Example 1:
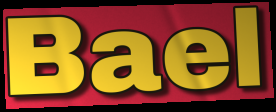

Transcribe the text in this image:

Bael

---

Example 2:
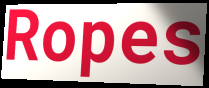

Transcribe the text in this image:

Ropes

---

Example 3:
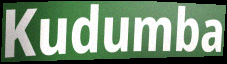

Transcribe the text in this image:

Kudumba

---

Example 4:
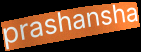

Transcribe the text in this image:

prashansha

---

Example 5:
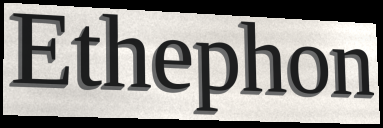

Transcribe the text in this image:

Ethephon